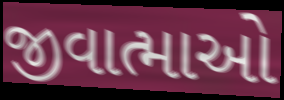
જીવાત્માઓ